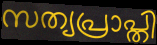
സത്യപ്രാപ്തി